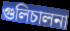
গুলিচালনা